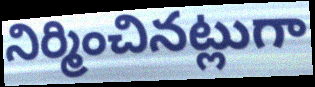
నిర్మించినట్లుగా